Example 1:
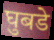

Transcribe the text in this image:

घुबडे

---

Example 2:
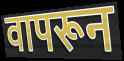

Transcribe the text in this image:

वापरून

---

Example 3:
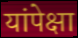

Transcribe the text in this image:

यांपेक्षा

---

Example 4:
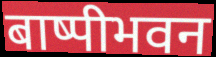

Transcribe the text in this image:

बाष्पीभवन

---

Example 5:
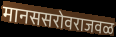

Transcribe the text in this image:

मानससरोवराजवळ